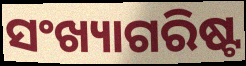
ସଂଖ୍ୟାଗରିଷ୍ଟ